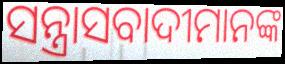
ସନ୍ତ୍ରାସବାଦୀମାନଙ୍କ